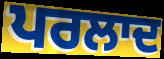
ਪਰਲਾਦ